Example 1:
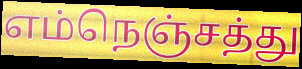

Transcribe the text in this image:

எம்நெஞ்சத்து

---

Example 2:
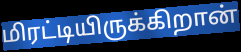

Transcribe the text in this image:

மிரட்டியிருக்கிறான்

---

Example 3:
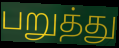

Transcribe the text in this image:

பறுத்து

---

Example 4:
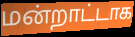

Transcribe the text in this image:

மன்றாட்டாக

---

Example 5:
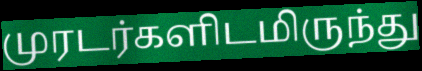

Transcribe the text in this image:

முரடர்களிடமிருந்து